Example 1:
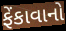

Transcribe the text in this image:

ફેંકાવાનો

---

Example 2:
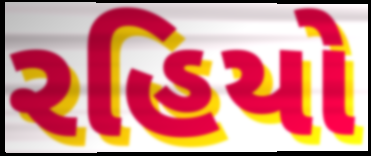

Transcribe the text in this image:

રહિયો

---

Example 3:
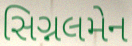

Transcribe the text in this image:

સિગ્નલમેન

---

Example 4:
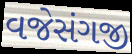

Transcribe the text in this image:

વજેસંગજી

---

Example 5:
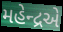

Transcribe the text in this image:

મહેન્દ્રએ